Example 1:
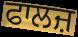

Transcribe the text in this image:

ਫਾਲਜ਼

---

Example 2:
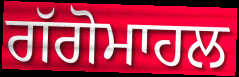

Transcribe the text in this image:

ਗੱਗੋਮਾਹਲ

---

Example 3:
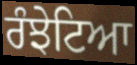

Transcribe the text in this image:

ਰੰਝੇਟਿਆ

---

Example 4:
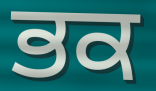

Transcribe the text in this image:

ਭਕ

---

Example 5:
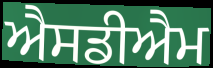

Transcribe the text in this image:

ਐਸਡੀਐਮ